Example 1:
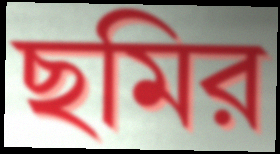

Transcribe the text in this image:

ছমির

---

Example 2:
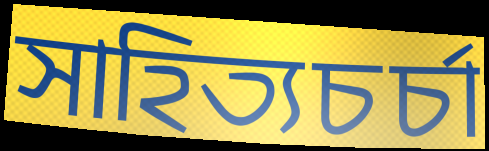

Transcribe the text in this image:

সাহিত্যচর্চা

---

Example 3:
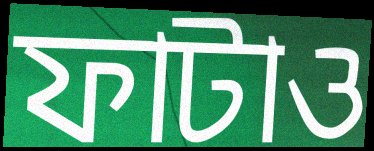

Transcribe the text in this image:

ফাটাও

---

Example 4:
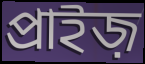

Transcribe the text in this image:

প্রাইজ়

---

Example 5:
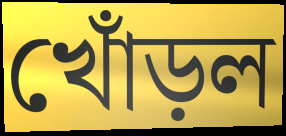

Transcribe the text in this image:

খোঁড়ল